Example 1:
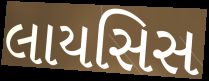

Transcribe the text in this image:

લાયસિસ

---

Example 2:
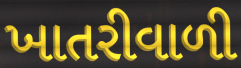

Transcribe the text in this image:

ખાતરીવાળી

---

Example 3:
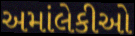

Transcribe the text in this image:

અમાંલેકીઓ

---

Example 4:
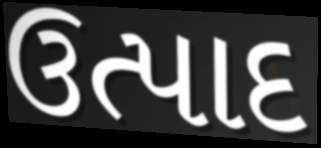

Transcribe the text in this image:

ઉત્પાદ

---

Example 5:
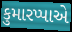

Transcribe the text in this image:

કુમારપ્પાએ